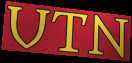
UTN